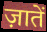
ज़ातें